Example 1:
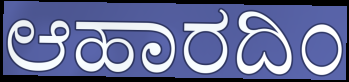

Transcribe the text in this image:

ಆಹಾರದಿಂ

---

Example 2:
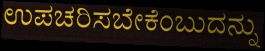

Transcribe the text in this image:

ಉಪಚರಿಸಬೇಕೆಂಬುದನ್ನು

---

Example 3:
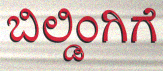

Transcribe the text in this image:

ಬಿಲ್ಡಿಂಗಿಗೆ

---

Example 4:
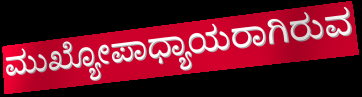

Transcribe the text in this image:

ಮುಖ್ಯೋಪಾಧ್ಯಾಯರಾಗಿರುವ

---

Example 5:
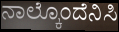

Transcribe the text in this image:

ನಾಲ್ಕೊಂದೆನಿಸಿ